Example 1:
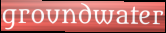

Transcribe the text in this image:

groundwater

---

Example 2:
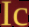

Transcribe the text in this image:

Ic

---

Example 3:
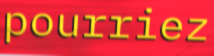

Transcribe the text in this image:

pourriez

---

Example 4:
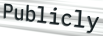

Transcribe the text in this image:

Publicly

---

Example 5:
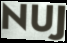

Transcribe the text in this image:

NUJ